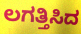
ಲಗತ್ತಿಸಿದ